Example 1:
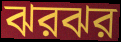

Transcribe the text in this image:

ঝরঝর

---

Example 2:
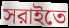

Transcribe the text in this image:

সরাইতে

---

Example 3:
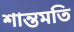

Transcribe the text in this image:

শান্তমতি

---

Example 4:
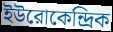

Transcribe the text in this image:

ইউরোকেন্দ্রিক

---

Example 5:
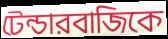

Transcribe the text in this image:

টেন্ডারবাজিকে